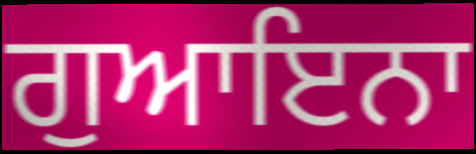
ਗੁਆਇਨਾ